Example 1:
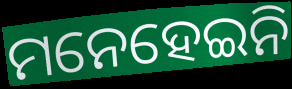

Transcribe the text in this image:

ମନେହେଇନି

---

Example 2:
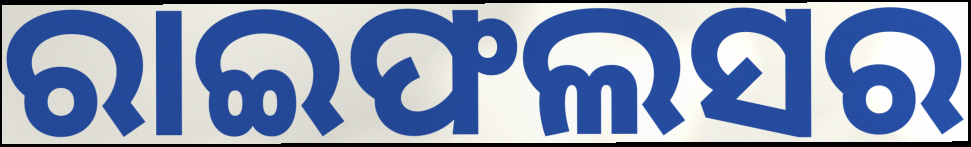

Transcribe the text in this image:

ରାଇଫଲସର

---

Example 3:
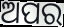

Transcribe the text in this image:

ଅପର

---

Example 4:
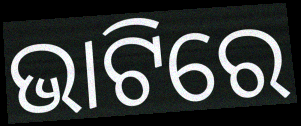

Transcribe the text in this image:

ଭାଟିରେ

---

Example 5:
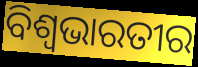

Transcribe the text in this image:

ବିଶ୍ୱଭାରତୀର